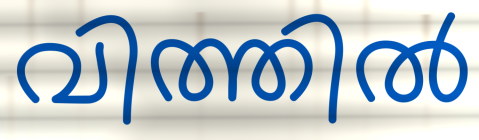
വിത്തിൽ